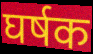
घर्षक